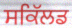
ਸਕਿੱਲਡ